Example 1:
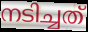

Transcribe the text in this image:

നടിച്ചത്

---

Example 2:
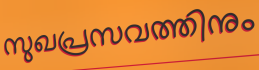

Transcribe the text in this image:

സുഖപ്രസവത്തിനും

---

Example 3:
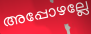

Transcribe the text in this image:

അപ്പോഴല്ലേ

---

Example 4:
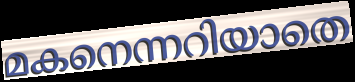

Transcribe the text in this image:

മകനെന്നറിയാതെ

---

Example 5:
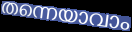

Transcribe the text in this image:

തന്നെയാവാം